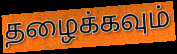
தழைக்கவும்